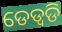
ଡେଡ୍ବଡି